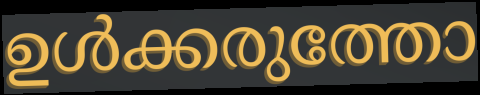
ഉൾക്കരുത്തോ